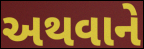
અથવાને